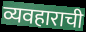
व्यवहाराची